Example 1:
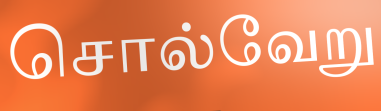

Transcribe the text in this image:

சொல்வேறு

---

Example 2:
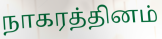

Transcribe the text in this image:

நாகரத்தினம்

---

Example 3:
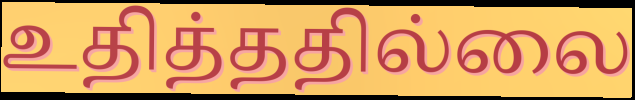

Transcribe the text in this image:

உதித்ததில்லை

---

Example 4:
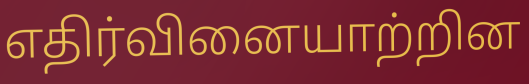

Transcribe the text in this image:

எதிர்வினையாற்றின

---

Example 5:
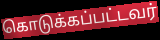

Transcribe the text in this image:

கொடுக்கப்பட்டவர்